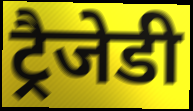
ट्रैजेडी